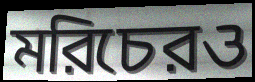
মরিচেরও